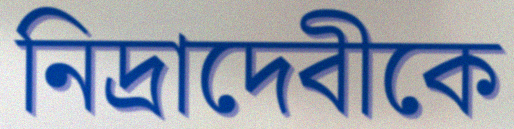
নিদ্রাদেবীকে